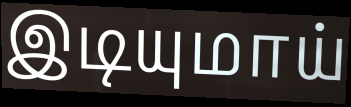
இடியுமாய்